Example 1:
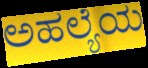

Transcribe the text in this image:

ಅಹಲ್ಯೆಯ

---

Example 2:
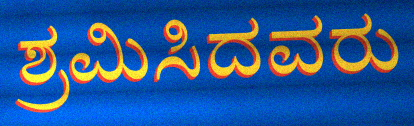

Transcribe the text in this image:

ಶ್ರಮಿಸಿದವರು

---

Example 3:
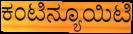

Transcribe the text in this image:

ಕಂಟಿನ್ಯೂಯಿಟಿ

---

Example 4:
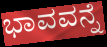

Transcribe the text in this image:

ಭಾವವನ್ನೆ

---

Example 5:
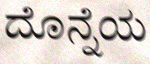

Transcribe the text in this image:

ದೊನ್ನೆಯ